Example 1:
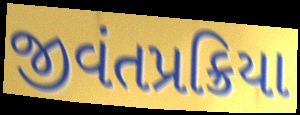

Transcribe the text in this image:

જીવંતપ્રક્રિયા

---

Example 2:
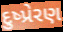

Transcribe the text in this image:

દુષ્પ્રેરણ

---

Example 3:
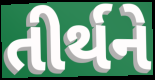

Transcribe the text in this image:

તીર્થને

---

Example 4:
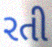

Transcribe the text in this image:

રતી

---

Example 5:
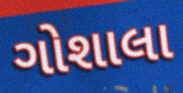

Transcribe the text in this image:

ગોશાલા